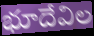
భూదేవిల